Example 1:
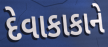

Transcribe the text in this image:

દેવાકાકાને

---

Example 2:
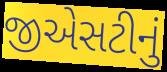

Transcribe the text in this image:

જીએસટીનું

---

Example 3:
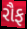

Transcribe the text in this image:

રૌફ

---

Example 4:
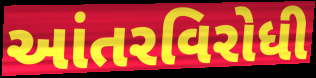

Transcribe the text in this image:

આંતરવિરોધી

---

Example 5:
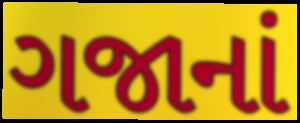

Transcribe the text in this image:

ગજાનાં